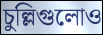
চুল্লিগুলোও